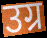
उग्र